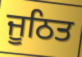
ਜੂਠਿਤ